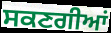
ਸਕਣਗੀਆਂ